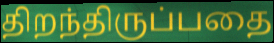
திறந்திருப்பதை